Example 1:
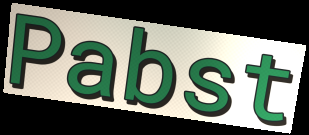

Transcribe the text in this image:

Pabst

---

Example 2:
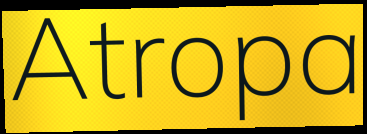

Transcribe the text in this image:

Atropa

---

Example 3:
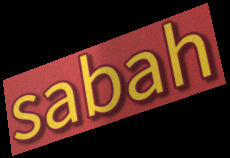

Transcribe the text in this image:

sabah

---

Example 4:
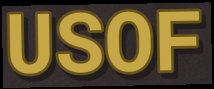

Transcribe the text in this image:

USOF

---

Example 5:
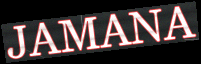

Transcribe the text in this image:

JAMANA